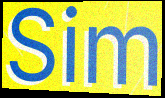
Sim